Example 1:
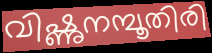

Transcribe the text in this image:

വിഷ്ണുനമ്പൂതിരി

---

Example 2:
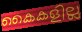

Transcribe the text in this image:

കൈകളില്ല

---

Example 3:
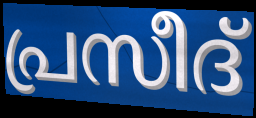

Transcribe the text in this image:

പ്രസീദ്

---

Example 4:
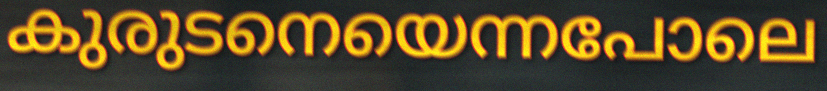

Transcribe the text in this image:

കുരുടനെയെന്നപോലെ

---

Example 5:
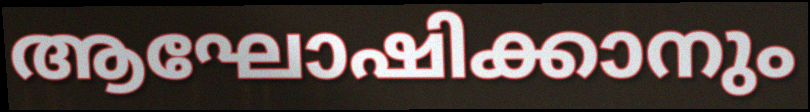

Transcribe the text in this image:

ആഘോഷിക്കാനും